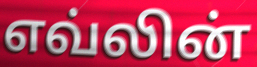
எவ்லின்